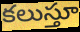
కలుస్తూ